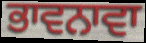
ਭਾਵਨਾਵਾ